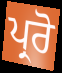
ਪ੍ਰਰੋ